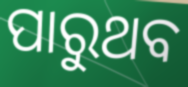
ପାରୁଥବ